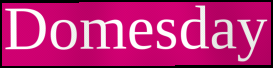
Domesday